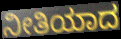
ನೀತಿಯಾದ